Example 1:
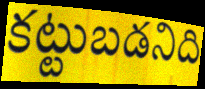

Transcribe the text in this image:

కట్టుబడనిది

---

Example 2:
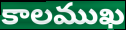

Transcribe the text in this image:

కాలముఖ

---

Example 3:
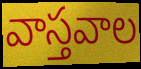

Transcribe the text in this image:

వాస్తవాల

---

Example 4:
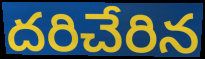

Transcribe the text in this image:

దరిచేరిన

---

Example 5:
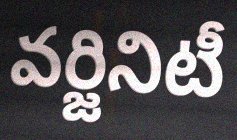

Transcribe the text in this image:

వర్జినిటీ